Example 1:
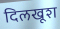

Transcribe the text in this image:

दिलखूश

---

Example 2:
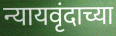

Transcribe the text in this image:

न्यायवृंदाच्या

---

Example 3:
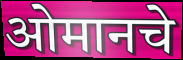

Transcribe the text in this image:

ओमानचे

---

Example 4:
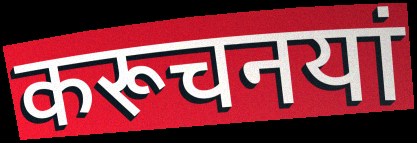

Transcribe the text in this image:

करूचनयां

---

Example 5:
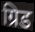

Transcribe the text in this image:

ग्रिड